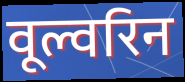
वूल्वरिन